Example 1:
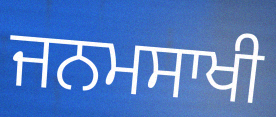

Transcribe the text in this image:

ਜਨਮਸਾਖੀ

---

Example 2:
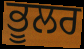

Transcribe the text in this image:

ਭੂਲਰ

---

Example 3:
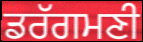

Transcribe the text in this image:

ਡਰੱਗਮਣੀ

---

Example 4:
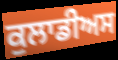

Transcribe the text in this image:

ਕੁਲਾਡੀਅਸ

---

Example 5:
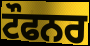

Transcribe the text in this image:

ਟੌਫਨਰ